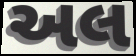
અલ